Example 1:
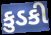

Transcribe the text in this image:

કુડકી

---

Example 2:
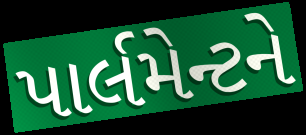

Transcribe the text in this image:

પાર્લમેન્ટને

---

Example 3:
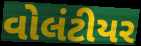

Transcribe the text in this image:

વોલંટીયર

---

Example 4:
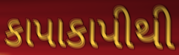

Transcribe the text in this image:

કાપાકાપીથી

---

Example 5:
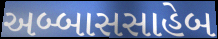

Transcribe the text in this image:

અબ્બાસસાહેબ